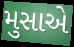
મુસાએ